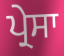
ਪ੍ਰੇਸਾ